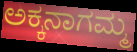
ಅಕ್ಕನಾಗಮ್ಮ